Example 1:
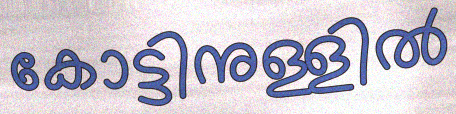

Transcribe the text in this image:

കോട്ടിനുള്ളിൽ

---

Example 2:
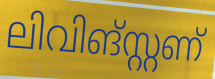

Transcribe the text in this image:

ലിവിങ്സ്റ്റണ്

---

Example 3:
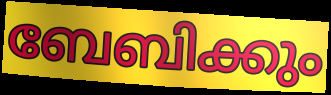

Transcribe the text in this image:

ബേബിക്കും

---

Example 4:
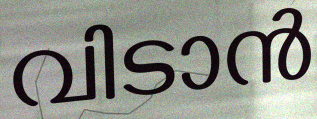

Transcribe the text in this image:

വിടാൻ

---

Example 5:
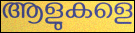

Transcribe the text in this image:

ആളുകളെ